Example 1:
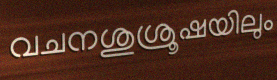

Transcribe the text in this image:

വചനശുശ്രൂഷയിലും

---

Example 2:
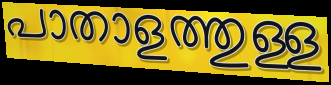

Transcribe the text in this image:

പാതാളത്തുള്ള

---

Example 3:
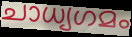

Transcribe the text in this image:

ചാധ്യഗമം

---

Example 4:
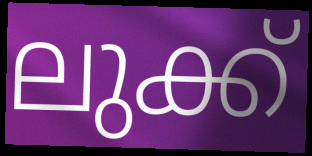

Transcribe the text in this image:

ലുക്ക്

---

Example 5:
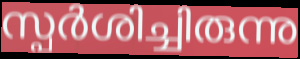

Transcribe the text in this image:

സ്പർശിച്ചിരുന്നു